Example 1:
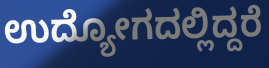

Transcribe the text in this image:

ಉದ್ಯೋಗದಲ್ಲಿದ್ದರೆ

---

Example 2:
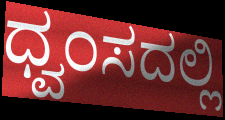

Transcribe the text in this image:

ಧ್ವಂಸದಲ್ಲಿ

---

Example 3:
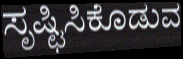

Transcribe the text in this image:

ಸೃಷ್ಟಿಸಿಕೊಡುವ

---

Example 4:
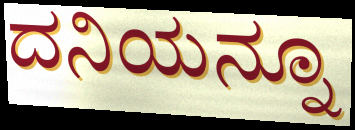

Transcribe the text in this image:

ದನಿಯನ್ನೂ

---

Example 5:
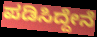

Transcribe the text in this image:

ಪಡಿಸಿದ್ದೇನೆ